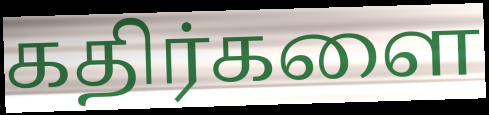
கதிர்களை